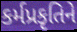
કર્મપ્રકૃતિને